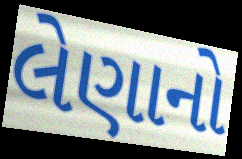
લેણાનો